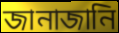
জানাজানি